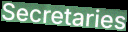
Secretaries